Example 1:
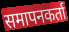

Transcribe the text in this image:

समापनकर्ता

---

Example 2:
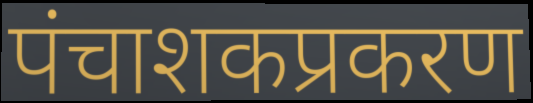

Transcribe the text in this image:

पंचाशकप्रकरण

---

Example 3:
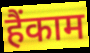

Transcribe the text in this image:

हैंकाम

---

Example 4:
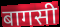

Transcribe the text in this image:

बागसी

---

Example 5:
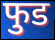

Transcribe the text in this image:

फुड